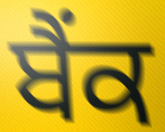
ਬੈਂਕ